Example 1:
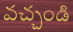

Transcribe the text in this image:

వచ్చండి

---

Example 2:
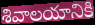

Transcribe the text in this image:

శివాలయానికి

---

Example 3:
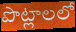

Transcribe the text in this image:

పొట్లాలలో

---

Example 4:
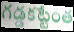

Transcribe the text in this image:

గడ్డకట్టేంత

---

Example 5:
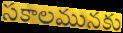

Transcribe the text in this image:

సకాలమునకు